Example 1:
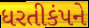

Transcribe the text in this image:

ધરતીકંપને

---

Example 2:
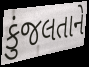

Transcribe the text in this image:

કુંજલતાને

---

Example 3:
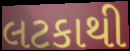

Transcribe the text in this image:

લટકાથી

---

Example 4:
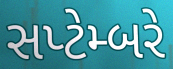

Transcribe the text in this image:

સપ્ટેમ્બરે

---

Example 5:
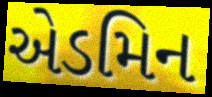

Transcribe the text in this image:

એડમિન